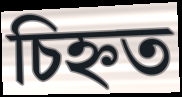
চিহ্নত